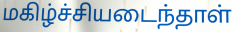
மகிழ்ச்சியடைந்தாள்